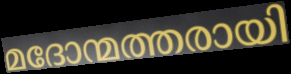
മദോന്മത്തരായി